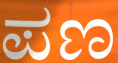
ಪಣ